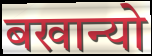
बखान्यो